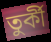
তুর্কী